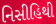
નિસીહિથી